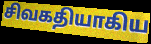
சிவகதியாகிய